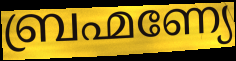
ബ്രഹ്മണ്യേ